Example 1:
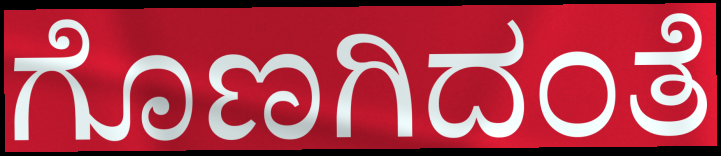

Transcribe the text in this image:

ಗೊಣಗಿದಂತೆ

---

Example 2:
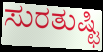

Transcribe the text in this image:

ಸುರತುಷ್ಟಿ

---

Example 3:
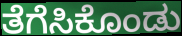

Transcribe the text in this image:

ತೆಗೆಸಿಕೊಂಡು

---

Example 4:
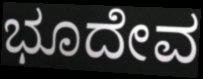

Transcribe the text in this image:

ಭೂದೇವ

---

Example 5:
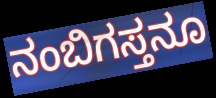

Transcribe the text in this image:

ನಂಬಿಗಸ್ತನೂ